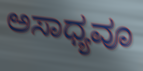
ಅಸಾಧ್ಯವೂ